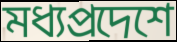
মধ্যপ্রদেশে